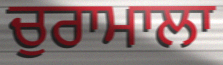
ਚੁਰਾਮਾਲਾ